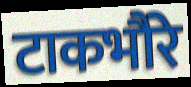
टाकभौरे